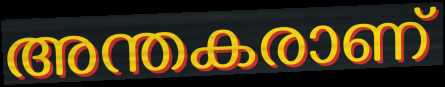
അന്തകരാണ്